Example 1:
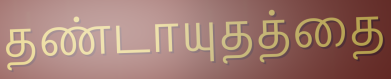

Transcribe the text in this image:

தண்டாயுதத்தை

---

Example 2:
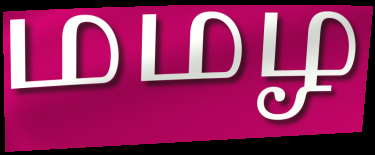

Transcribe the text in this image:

மமழ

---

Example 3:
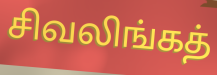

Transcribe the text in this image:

சிவலிங்கத்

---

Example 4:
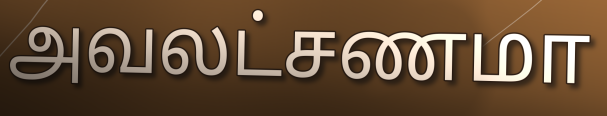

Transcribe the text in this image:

அவலட்சணமா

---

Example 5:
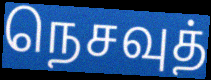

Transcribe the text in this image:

நெசவுத்